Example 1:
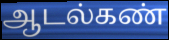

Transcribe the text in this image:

ஆடல்கண்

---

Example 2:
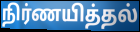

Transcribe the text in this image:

நிர்ணயித்தல்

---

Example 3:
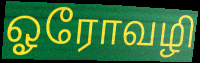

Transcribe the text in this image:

ஓரோவழி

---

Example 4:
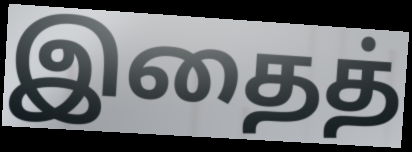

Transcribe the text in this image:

இதைத்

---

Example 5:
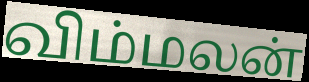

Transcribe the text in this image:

விம்மலன்